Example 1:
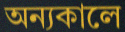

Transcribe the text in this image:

অন্যকালে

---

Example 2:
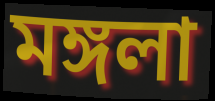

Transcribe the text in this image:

মঙ্গলা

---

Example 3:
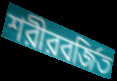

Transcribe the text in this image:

শরীরবর্জিত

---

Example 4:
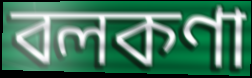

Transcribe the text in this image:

বলকণা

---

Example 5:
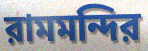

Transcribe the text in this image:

রামমন্দির